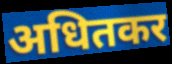
अधितकर